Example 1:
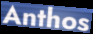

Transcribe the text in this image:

Anthos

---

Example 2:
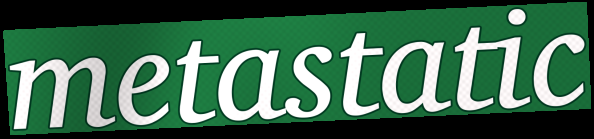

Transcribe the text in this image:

metastatic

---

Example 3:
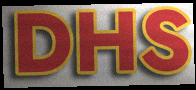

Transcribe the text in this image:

DHS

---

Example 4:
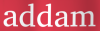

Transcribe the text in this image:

addam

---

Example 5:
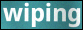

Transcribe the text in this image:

wiping